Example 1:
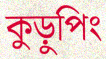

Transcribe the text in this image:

কুড়ুপিং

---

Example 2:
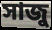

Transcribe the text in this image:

সাজু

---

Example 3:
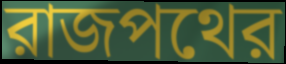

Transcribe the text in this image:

রাজপথের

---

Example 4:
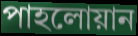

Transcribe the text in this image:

পাহলোয়ান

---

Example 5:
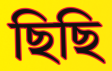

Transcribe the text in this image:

ছিছি